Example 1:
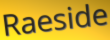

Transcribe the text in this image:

Raeside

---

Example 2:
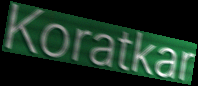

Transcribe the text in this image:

Koratkar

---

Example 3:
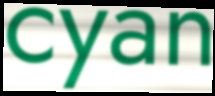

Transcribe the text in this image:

cyan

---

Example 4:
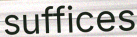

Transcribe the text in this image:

suffices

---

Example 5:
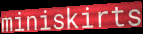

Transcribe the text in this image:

miniskirts